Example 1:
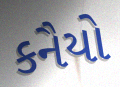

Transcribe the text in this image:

કનૈયો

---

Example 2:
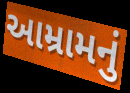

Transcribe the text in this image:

આમ્રામનું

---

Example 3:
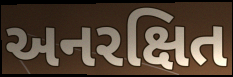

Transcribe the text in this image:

અનરક્ષિત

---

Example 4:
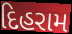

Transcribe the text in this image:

દિહરામ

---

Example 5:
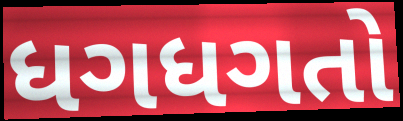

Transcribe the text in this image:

ધગધગતો